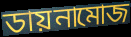
ডায়নামোজ